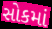
સોકમાં